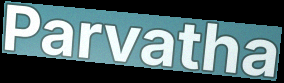
Parvatha